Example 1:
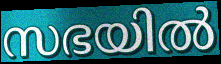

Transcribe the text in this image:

സഭയിൽ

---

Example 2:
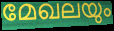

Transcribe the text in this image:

മേഖലയും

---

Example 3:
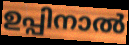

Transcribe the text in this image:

ഉപ്പിനാൽ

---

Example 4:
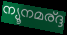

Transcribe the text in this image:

ന്യൂനമര്ദ്ദ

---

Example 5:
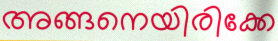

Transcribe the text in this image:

അങ്ങനെയിരിക്കേ